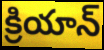
క్రియాన్